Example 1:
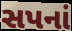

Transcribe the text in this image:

સપનાં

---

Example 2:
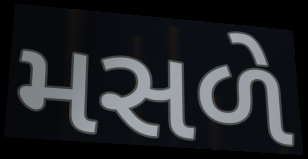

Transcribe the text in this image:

મસળે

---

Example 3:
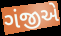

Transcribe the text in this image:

ગંજીએ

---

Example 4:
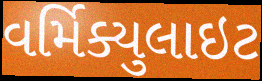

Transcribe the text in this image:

વર્મિક્યુલાઇટ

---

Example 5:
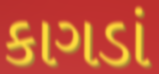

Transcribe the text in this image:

કાગડાં